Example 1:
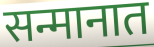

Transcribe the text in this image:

सन्मानात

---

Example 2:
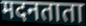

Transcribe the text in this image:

मदनताता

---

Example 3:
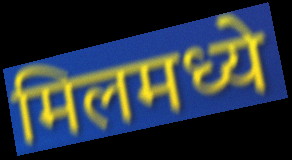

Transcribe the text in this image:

मिलमध्ये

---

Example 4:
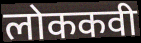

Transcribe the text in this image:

लोककवी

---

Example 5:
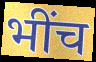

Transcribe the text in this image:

भींच